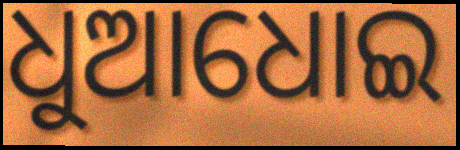
ଧୁଆଧୋଇ